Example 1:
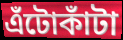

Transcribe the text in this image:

এঁটোকাঁটা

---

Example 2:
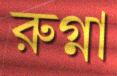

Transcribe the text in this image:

রুগ্না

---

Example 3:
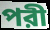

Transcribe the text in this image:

পরী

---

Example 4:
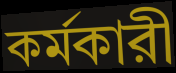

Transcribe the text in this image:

কর্মকারী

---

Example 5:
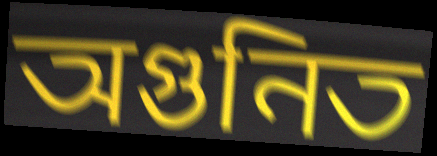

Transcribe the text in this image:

অগুনিত